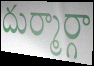
దుర్మార్గా